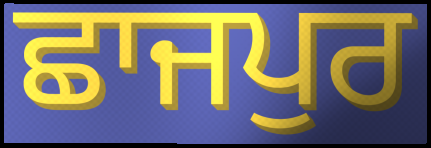
ਛਾਜਪੁਰ